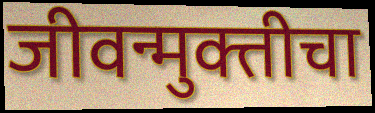
जीवन्मुक्तीचा